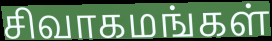
சிவாகமங்கள்